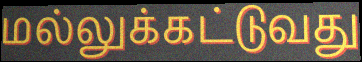
மல்லுக்கட்டுவது